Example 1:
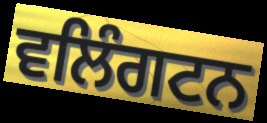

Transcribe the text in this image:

ਵਲਿੰਗਟਨ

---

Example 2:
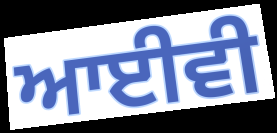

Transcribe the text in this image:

ਆਈਵੀ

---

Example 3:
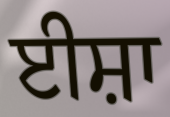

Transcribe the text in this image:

ਈਸ਼ਾ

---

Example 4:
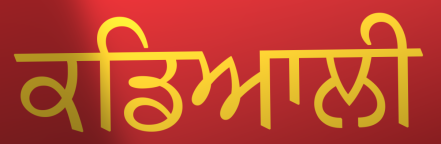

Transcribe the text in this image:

ਕਡਿਆਲੀ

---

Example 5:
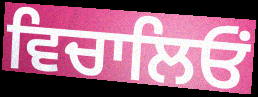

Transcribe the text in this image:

ਵਿਚਾਲਿਓਂ